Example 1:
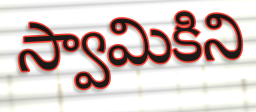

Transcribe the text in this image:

స్వామికిని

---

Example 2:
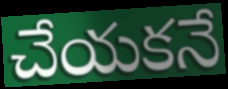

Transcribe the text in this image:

చేయకనే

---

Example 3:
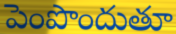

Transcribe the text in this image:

పెంపొందుతూ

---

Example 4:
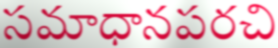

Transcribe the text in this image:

సమాధానపరచి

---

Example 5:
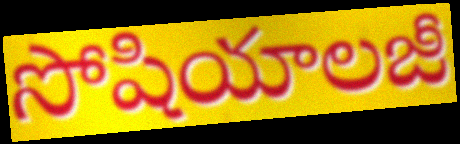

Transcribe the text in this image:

సోషియాలజీ